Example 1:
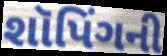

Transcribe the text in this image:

શૉપિંગની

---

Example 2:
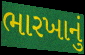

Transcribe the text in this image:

ભારખાનું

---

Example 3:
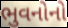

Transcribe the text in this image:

ભુવનોનો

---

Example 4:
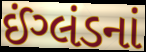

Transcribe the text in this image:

ઈંગ્લંડનાં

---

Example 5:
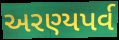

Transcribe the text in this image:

અરણ્યપર્વ